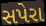
સપેરા